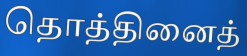
தொத்தினைத்